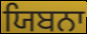
ਯਿਬਨਾ